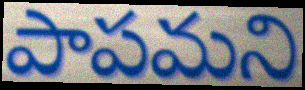
పాపమని